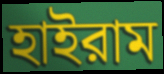
হাইরাম